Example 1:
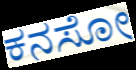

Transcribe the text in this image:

ಕನಸೋ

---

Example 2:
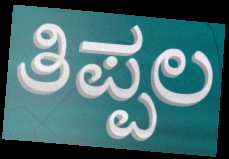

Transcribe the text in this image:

ತಿಪ್ಪಲ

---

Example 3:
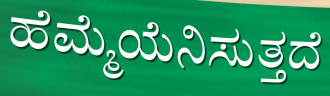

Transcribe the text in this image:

ಹೆಮ್ಮೆಯೆನಿಸುತ್ತದೆ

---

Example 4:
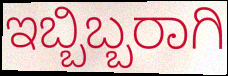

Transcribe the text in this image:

ಇಬ್ಬಿಬ್ಬರಾಗಿ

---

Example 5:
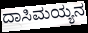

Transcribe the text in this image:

ದಾಸಿಮಯ್ಯನ